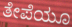
ತೇಪೆಯೂ